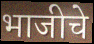
भाजीचे